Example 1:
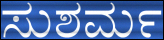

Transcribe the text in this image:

ಸುಶರ್ಮ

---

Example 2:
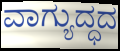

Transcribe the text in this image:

ವಾಗ್ಯುದ್ಧದ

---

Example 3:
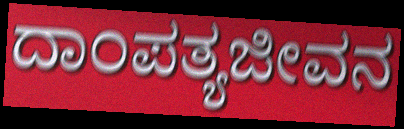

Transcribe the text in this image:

ದಾಂಪತ್ಯಜೀವನ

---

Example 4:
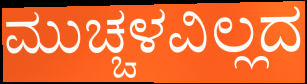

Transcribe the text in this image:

ಮುಚ್ಚಳವಿಲ್ಲದ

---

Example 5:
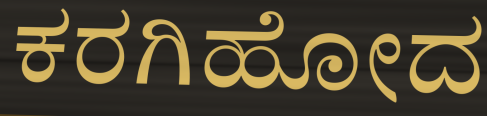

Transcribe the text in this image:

ಕರಗಿಹೋದ